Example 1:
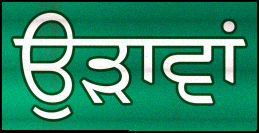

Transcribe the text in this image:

ਉੜਾਵਾਂ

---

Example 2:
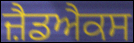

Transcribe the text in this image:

ਜ਼ੈਡਐਕਸ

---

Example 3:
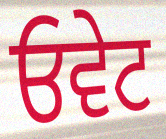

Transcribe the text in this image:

ਓਵੇਟ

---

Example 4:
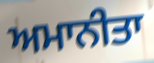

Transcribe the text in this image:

ਅਮਾਨੀਤਾ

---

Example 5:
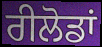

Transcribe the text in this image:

ਰੀਲੋਡਾਂ